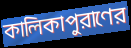
কালিকাপুরাণের